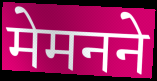
मेमनने